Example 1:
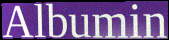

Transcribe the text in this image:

Albumin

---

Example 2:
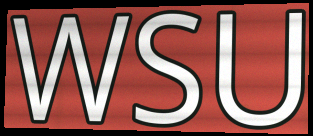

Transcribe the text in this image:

WSU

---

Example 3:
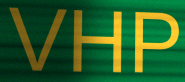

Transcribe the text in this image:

VHP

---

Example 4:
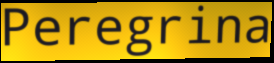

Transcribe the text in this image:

Peregrina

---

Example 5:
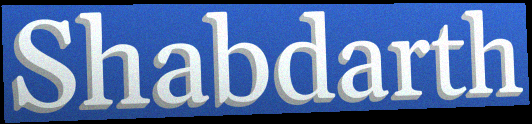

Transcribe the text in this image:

Shabdarth